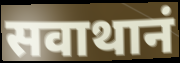
सवाथानं